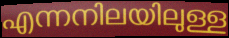
എന്നനിലയിലുള്ള